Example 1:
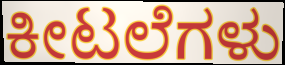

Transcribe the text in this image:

ಕೀಟಲೆಗಳು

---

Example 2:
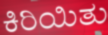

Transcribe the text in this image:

ಕಿರಿಯಿತು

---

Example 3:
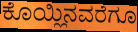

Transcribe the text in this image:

ಕೊಯ್ಲಿನವರೆಗೂ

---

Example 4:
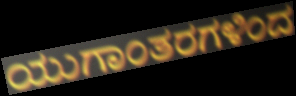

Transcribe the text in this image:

ಯುಗಾಂತರಗಳಿಂದ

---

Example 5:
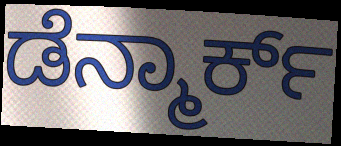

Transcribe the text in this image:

ಡೆನ್ಮಾರ್ಕ್